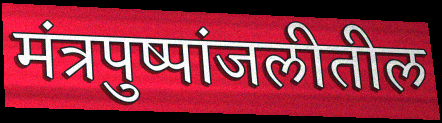
मंत्रपुष्पांजलीतील